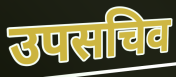
उपसचिव